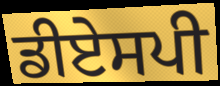
ਡੀਏਸਪੀ